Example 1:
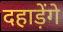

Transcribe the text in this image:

दहाड़ेंगे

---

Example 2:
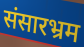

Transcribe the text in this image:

संसारभ्रम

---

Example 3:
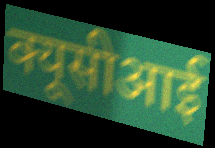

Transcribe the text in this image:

क्यूसीआई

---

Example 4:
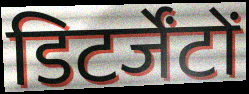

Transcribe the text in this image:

डिटर्जेंटों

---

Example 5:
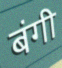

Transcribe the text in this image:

बंगी